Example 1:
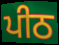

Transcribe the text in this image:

ਪੀਠ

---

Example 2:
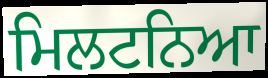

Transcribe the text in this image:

ਮਿਲਟਨਿਆ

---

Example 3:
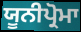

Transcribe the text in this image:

ਯੂਨੀਪ੍ਰੋਮਾ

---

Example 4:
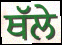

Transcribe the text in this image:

ਥੱਲੇ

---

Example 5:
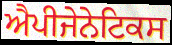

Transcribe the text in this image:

ਐਪੀਜੇਨੇਟਿਕਸ